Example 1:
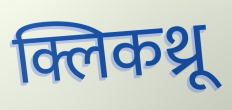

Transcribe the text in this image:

क्लिकथ्रू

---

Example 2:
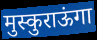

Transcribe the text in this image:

मुस्कुराऊंगा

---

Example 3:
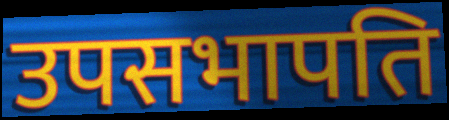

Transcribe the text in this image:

उपसभापति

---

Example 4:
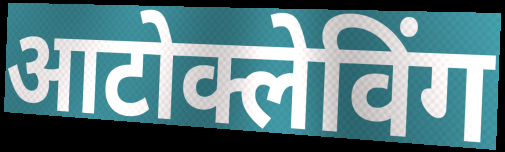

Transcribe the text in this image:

आटोक्लेविंग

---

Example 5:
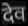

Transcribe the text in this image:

देव